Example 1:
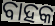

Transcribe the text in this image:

ବାହକ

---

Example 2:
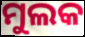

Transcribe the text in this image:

ମୁଲକ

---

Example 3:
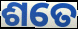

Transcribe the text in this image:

ଶତେ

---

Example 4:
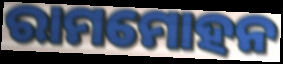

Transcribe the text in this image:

ରାମମୋହନ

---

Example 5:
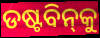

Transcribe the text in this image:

ଡଷ୍ଟବିନ୍‌କୁ